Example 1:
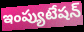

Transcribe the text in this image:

ఇంప్యుటేషన్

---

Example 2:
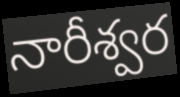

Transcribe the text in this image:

నారీశ్వర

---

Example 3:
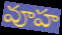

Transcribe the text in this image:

వూహ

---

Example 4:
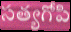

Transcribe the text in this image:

సత్యగోపి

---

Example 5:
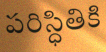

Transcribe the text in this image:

పరిస్ధితికి